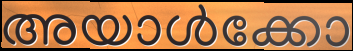
അയാൾക്കോ